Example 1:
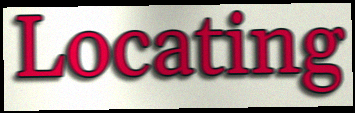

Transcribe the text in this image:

Locating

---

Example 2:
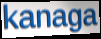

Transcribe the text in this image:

kanaga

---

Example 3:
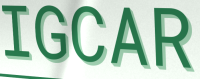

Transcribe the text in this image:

IGCAR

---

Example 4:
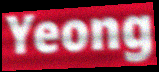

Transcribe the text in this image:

Yeong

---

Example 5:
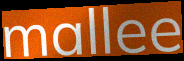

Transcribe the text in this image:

mallee